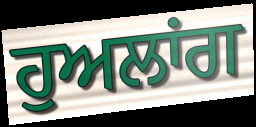
ਹੁਅਲਾਂਗ